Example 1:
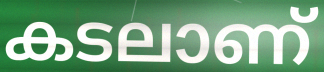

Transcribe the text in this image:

കടലാണ്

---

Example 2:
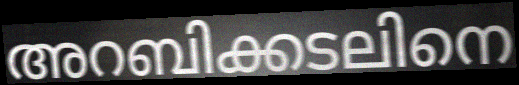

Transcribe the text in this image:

അറബിക്കടലിനെ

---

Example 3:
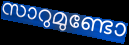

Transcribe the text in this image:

സാറുമുണ്ടോ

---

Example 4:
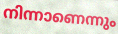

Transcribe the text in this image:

നിന്നാണെന്നും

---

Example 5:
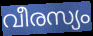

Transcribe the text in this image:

വീരസ്യം